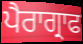
ਪੈਰਾਗ੍ਰਾਫ